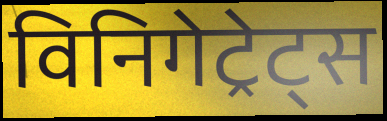
विनिगेट्रेट्स